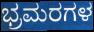
ಭ್ರಮರಗಳ